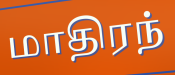
மாதிரந்